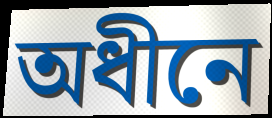
অধীনে